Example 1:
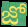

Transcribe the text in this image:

జో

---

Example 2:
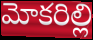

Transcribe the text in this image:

మోకరిల్లి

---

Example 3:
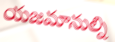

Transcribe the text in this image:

యజమానుల్ని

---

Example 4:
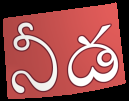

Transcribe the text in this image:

నీడ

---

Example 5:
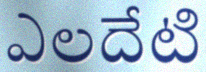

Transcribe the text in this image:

ఎలదేటి